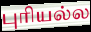
புரியல்ல